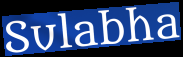
Sulabha